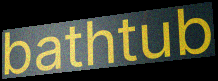
bathtub